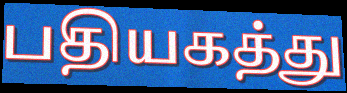
பதியகத்து